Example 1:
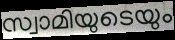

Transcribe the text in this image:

സ്വാമിയുടെയും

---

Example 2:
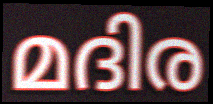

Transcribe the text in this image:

മദിര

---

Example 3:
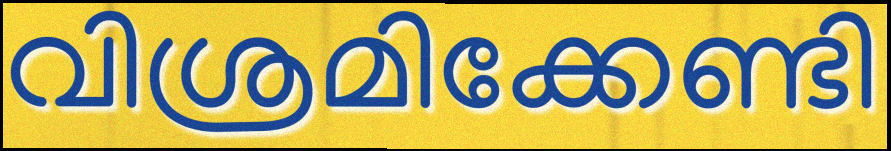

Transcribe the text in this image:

വിശ്രമിക്കേണ്ടി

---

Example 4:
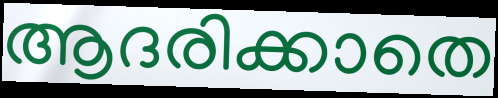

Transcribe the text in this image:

ആദരിക്കാതെ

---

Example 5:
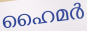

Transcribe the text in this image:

ഹൈമർ